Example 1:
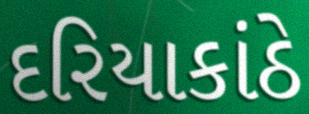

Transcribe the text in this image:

દરિયાકાંઠે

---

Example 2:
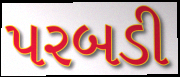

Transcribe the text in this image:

પરબડી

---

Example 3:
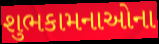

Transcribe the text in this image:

શુભકામનાઓના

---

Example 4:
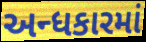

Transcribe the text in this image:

અન્ધકારમાં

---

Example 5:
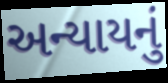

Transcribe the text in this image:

અન્યાયનું